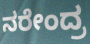
ನರೇಂದ್ರ